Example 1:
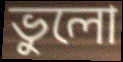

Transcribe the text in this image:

ভুলো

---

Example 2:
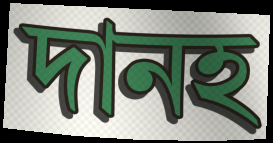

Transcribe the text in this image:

দানহ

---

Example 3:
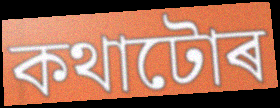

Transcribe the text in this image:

কথাটোৰ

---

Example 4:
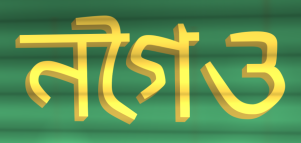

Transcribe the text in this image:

নগৈও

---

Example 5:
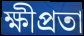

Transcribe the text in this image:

ক্ষীপ্ৰতা